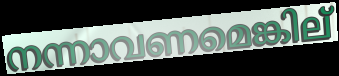
നന്നാവണമെങ്കില്